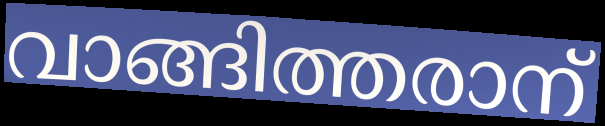
വാങ്ങിത്തരാന്